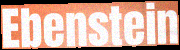
Ebenstein